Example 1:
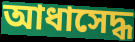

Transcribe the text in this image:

আধাসেদ্ধ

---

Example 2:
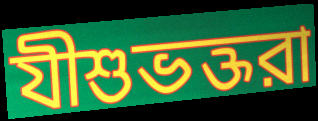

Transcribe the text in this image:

যীশুভক্তরা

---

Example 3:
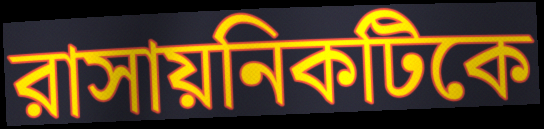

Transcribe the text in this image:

রাসায়নিকটিকে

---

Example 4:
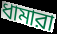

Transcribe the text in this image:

ধামারা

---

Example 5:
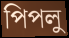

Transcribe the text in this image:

পিপলু